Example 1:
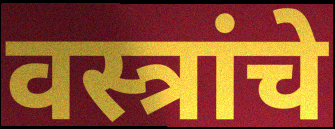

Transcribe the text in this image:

वस्त्रांचे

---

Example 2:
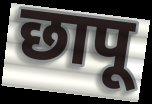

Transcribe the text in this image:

छापू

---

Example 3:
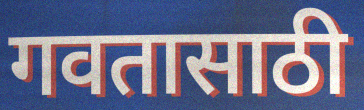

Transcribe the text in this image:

गवतासाठी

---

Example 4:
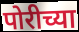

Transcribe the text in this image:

पोरीच्या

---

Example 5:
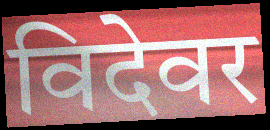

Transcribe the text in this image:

विदेवर